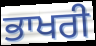
ਭਾਖਰੀ